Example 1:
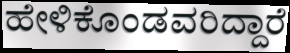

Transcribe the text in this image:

ಹೇಳಿಕೊಂಡವರಿದ್ದಾರೆ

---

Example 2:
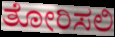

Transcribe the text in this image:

ತೋರಿಸಲಿ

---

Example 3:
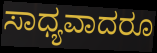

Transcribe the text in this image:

ಸಾಧ್ಯವಾದರೂ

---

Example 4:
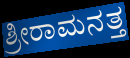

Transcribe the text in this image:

ಶ್ರೀರಾಮನತ್ತ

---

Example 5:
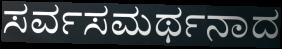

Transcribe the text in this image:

ಸರ್ವಸಮರ್ಥನಾದ